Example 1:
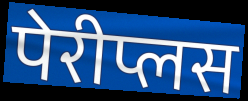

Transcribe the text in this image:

पेरीप्लस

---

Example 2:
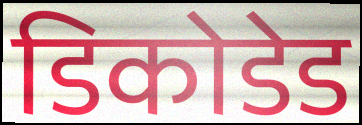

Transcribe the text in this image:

डिकोडेड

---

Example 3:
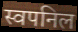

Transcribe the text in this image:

स्वपनिल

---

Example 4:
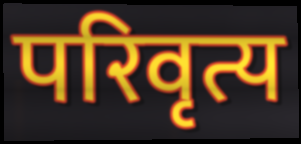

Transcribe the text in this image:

परिवृत्य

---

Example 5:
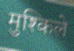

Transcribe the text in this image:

मुश्किले